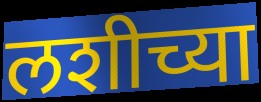
लशीच्या